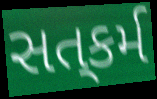
સત્‌કર્મ